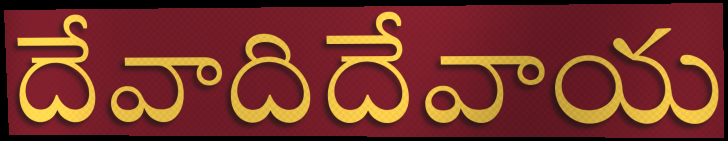
దేవాదిదేవాయ